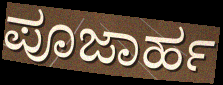
ಪೂಜಾರ್ಹ